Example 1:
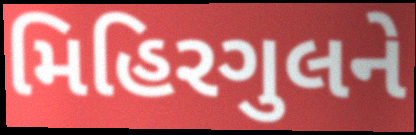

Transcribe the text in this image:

મિહિરગુલને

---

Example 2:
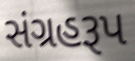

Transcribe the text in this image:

સંગ્રહરૂપ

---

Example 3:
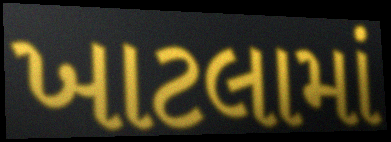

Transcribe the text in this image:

ખાટલામાં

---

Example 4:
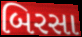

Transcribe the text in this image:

બિરસા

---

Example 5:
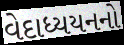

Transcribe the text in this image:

વેદાધ્યયનનો